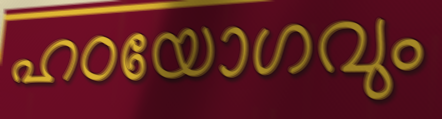
ഹഠയോഗവും